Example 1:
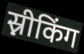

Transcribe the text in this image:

स्नीकिंग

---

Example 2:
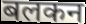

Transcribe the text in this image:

बलकन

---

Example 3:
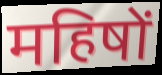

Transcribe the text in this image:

महिषों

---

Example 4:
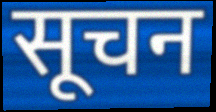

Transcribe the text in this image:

सूचन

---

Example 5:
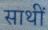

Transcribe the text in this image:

साथीं